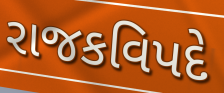
રાજકવિપદે